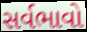
સર્વભાવો